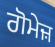
ਗੋਮੇਜ਼